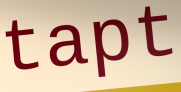
tapt